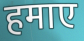
हमाए